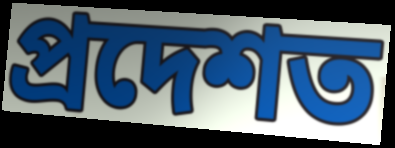
প্ৰদেশত